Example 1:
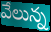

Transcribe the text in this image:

వేలున్న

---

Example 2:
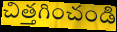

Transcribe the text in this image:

చిత్తగించండి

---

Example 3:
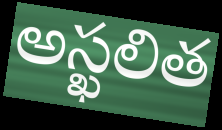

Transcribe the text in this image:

అస్ఖలిత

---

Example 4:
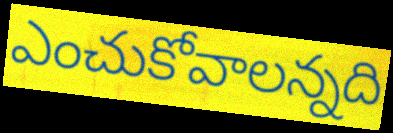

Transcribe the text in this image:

ఎంచుకోవాలన్నది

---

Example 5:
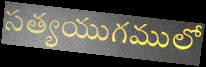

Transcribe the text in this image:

సత్యయుగములో